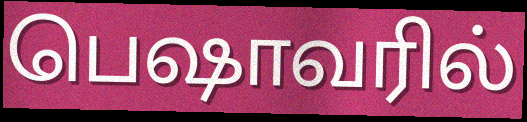
பெஷாவரில்